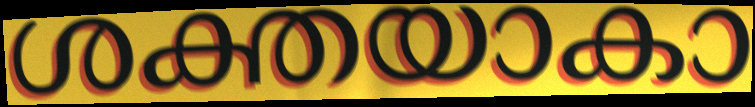
ശക്തയാകാ